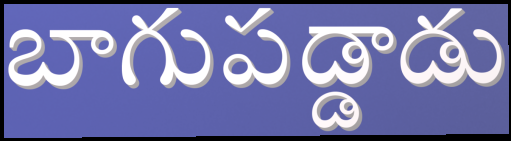
బాగుపడ్డాడు